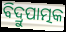
ବିଦ୍ରୁପାତ୍ମକ